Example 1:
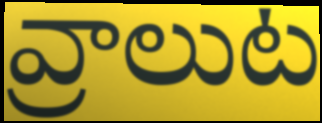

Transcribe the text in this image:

వ్రాలుట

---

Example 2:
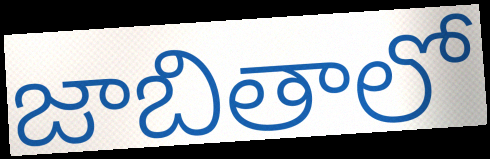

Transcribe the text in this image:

జాబితాలో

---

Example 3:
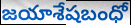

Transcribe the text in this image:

జయాశేషబంధో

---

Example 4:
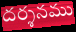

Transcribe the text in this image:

దర్శనము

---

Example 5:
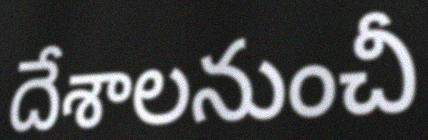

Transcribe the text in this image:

దేశాలనుంచీ